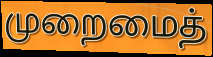
முறைமைத்